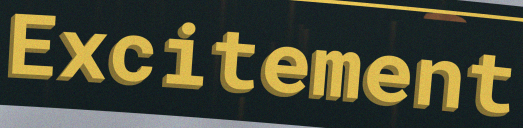
Excitement